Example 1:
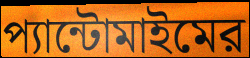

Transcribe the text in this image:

প্যান্টোমাইমের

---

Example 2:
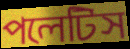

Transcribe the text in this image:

পলেটিস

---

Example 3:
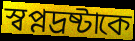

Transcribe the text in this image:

স্বপ্নদ্রষ্টাকে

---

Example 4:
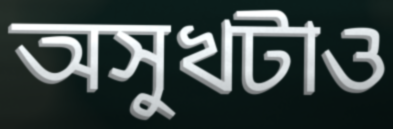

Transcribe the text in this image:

অসুখটাও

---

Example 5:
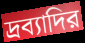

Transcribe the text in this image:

দ্রব্যাদির